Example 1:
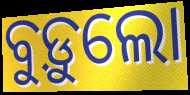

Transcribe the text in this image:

ବୁଡ଼ୁଲୋ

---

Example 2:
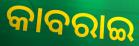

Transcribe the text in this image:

କାବରାଇ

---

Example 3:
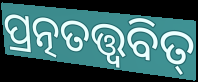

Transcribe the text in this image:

ପ୍ରତ୍ନତତ୍ତ୍ଵବିତ୍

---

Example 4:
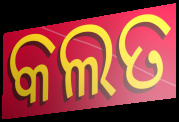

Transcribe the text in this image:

କଲତ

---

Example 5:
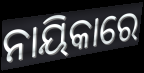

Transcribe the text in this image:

ନାୟିକାରେ